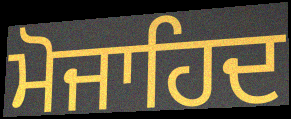
ਮੋਜਾਹਿਦ